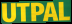
UTPAL